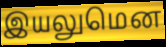
இயலுமென